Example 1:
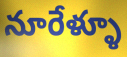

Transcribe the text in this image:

నూరేళ్ళూ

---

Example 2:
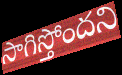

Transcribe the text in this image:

సాగిస్తోందని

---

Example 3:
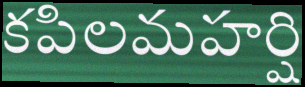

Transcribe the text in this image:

కపిలమహర్షి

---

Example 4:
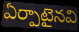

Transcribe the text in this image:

ఏర్పాటైనవి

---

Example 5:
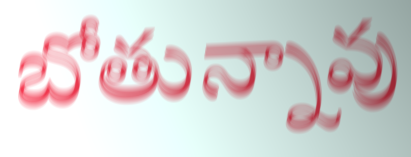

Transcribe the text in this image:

బోతున్నావు